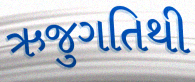
ઋજુગતિથી